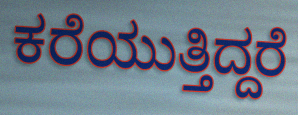
ಕರೆಯುತ್ತಿದ್ದರೆ